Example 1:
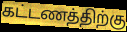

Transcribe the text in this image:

கட்டணத்திற்கு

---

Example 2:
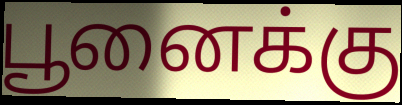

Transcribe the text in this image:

பூனைக்கு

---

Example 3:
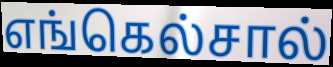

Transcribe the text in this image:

எங்கெல்சால்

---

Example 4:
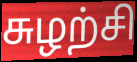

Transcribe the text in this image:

சுழற்சி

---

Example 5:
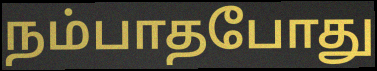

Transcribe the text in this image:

நம்பாதபோது